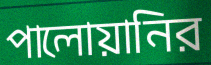
পালোয়ানির